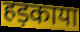
हड़काया